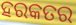
ହରକତର